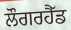
ਲੌਗਰਹੈੱਡ